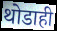
थोडाही